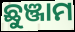
ଛୁଞ୍ଜାମ